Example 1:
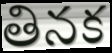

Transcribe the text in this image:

తినక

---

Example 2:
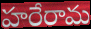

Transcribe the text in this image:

హరేరామ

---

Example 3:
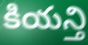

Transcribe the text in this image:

కియన్తి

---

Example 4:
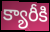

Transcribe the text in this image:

క్యారీకి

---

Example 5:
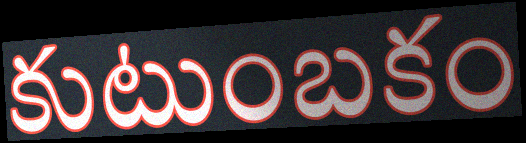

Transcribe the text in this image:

కుటుంబకం